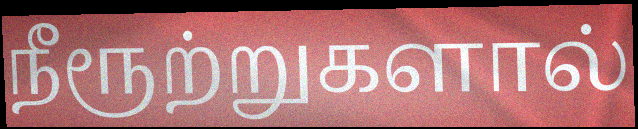
நீரூற்றுகளால்